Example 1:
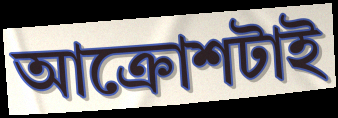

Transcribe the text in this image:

আক্রোশটাই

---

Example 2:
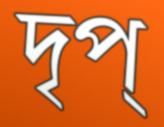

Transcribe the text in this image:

দৃপ্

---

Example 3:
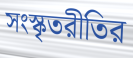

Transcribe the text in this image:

সংস্কৃতরীতির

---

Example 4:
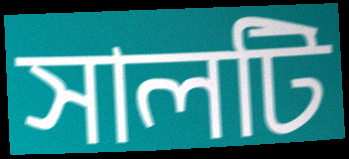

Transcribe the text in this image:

সালটি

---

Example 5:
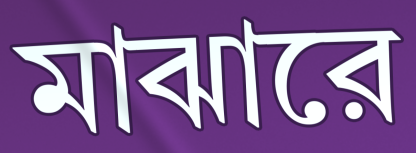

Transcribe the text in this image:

মাঝারে